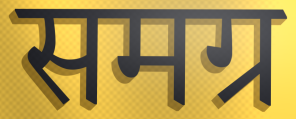
समग्र